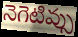
నెగెటివ్సు